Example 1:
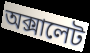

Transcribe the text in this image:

অক্সালেট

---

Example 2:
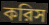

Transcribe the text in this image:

করিস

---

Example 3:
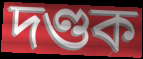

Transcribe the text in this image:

দণ্ডক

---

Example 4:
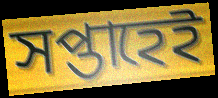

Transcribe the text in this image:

সপ্তাহেই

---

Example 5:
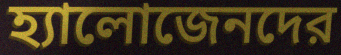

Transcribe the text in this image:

হ্যালোজেনদের